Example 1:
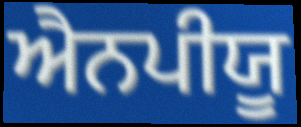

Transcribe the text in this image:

ਐਨਪੀਯੂ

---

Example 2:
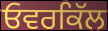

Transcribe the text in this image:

ਓਵਰਕਿੱਲ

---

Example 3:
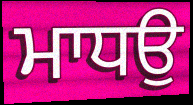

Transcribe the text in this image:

ਮਾਧਉ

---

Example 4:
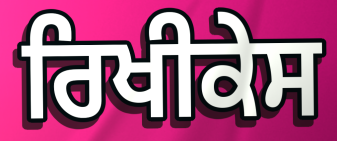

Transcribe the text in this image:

ਰਿਖੀਕੇਸ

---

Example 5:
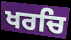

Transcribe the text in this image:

ਖਰਚਿ